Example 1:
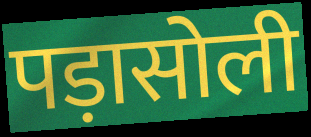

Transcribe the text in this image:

पड़ासोली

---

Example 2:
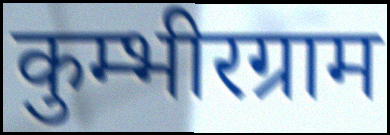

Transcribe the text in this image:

कुम्भीरग्राम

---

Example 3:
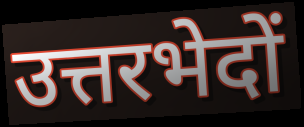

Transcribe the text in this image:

उत्तरभेदों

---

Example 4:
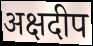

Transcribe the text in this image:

अक्षदीप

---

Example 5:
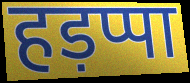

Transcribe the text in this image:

हड़प्पा